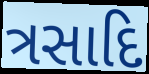
ત્રસાદિ